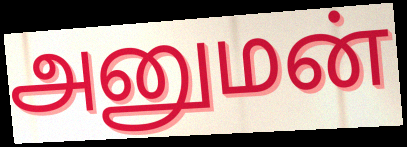
அனுமன்